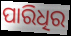
ପାରିଧିର